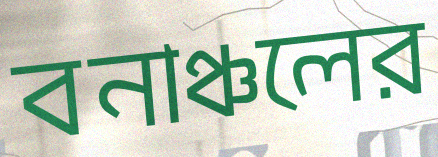
বনাঞ্চলের